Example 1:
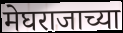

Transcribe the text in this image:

मेघराजाच्या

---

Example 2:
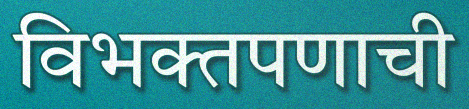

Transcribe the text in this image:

विभक्तपणाची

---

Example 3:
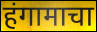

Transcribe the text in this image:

हंगामाचा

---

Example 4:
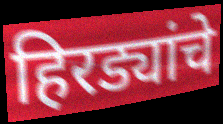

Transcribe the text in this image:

हिरड्यांचे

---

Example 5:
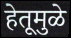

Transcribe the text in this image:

हेतूमुळे